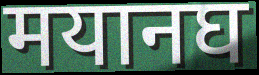
मयानघ